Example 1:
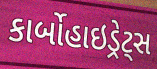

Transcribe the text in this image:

કાર્બોહાઇડ્રેટ્સ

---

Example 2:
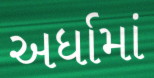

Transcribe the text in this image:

અર્ધામાં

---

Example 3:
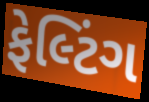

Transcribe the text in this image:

ફેલ્ટિંગ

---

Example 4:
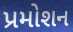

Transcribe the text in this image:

પ્રમોશન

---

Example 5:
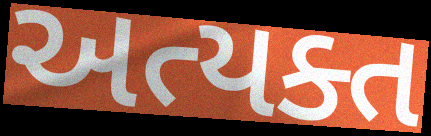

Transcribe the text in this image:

અત્યક્ત